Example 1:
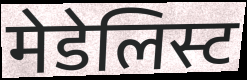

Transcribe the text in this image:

मेडेलिस्ट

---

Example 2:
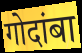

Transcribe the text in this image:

गोदांबा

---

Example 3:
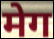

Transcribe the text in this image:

मेग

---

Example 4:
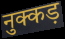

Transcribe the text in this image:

नुक्कड़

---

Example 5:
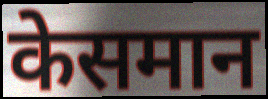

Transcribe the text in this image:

केसमान